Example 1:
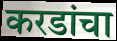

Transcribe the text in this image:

करडांचा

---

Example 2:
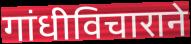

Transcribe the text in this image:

गांधीविचाराने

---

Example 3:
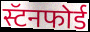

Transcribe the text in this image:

स्टॅनफोर्ड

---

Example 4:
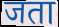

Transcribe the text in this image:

जता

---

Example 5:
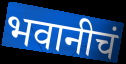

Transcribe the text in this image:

भवानीचं